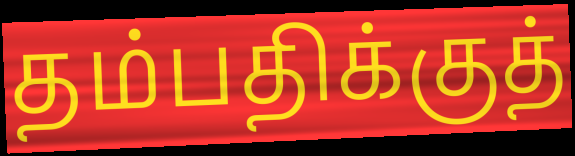
தம்பதிக்குத்